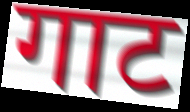
गाट